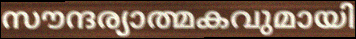
സൗന്ദര്യാത്മകവുമായി